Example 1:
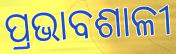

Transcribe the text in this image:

ପ୍ରଭାବଶାଳୀ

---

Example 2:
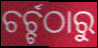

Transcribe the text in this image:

ଚର୍ଚ୍ଚଠାରୁ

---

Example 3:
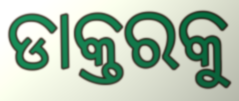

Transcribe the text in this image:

ଡାକ୍ତରକୁ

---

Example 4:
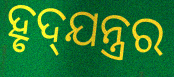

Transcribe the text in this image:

ହୃଦ୍‍ଯନ୍ତ୍ରର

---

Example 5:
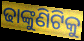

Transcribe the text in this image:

ଢାଙ୍କୁଣିଟିକୁ